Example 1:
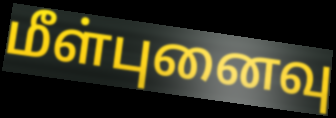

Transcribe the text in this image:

மீள்புனைவு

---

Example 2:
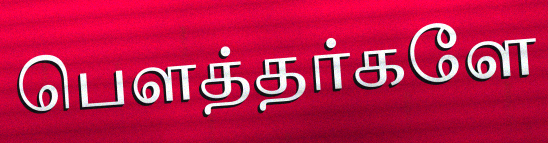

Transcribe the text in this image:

பௌத்தர்களே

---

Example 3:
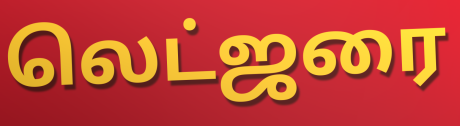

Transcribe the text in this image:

லெட்ஜரை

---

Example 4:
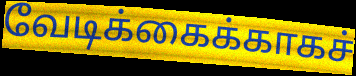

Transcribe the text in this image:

வேடிக்கைக்காகச்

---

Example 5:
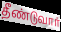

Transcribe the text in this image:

தீண்டுவார்